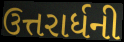
ઉત્તરાર્ધની